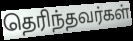
தெரிந்தவர்கள்